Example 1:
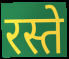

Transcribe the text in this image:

रस्ते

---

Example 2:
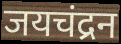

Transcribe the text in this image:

जयचंद्रन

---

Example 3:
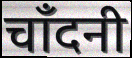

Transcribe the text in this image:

चाँदनी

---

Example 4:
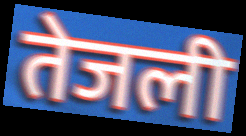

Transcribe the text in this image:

तेजली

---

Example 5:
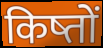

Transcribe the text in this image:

किष्तों